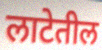
लाटेतील